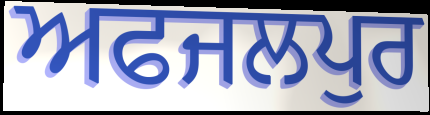
ਅਫਜਲਪੁਰ